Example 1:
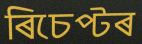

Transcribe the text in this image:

ৰিচেপ্টৰ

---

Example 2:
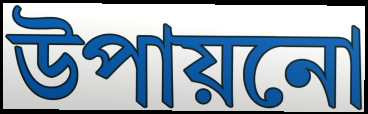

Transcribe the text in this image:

উপায়নো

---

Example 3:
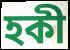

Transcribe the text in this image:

হকী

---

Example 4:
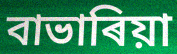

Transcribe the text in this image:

বাভাৰিয়া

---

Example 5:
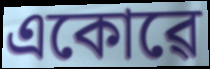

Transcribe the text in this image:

একোৱে